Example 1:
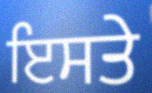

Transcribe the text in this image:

ਇਸਤੇ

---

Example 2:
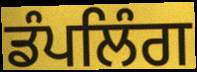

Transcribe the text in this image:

ਡੰਪਲਿੰਗ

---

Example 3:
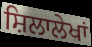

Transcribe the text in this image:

ਸ਼ਿਲਾਲੇਖਾਂ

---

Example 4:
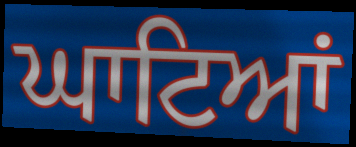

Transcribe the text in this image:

ਘਾਟਿਆਂ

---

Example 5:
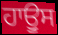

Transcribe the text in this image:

ਹਾਊੁਸ